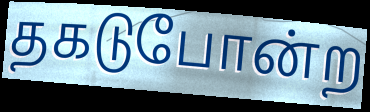
தகடுபோன்ற